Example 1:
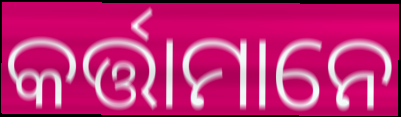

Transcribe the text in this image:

କର୍ତ୍ତାମାନେ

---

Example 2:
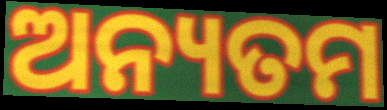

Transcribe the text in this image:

ଅନ୍ୟତମ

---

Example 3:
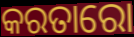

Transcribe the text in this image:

କରତାରୋ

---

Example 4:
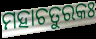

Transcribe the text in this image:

ମହାଚତୁରକଃ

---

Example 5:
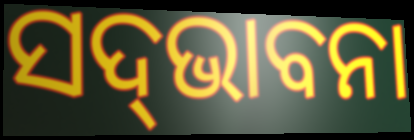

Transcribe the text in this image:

ସଦ୍‌ଭାବନା